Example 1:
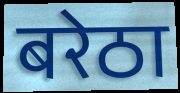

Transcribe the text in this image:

बरेठा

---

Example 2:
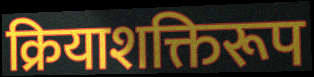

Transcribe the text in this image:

क्रियाशक्तिरूप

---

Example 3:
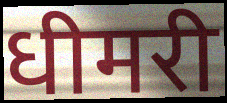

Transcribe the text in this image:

धीमरी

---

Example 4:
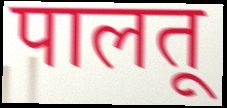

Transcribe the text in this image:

पालतू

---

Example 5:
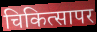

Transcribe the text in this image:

चिकित्सापर